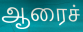
ஆரைச்